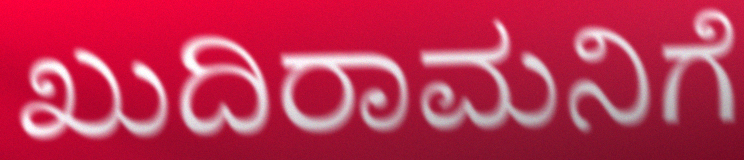
ಖುದಿರಾಮನಿಗೆ